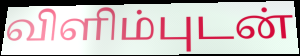
விளிம்புடன்